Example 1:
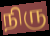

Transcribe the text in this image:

நிரு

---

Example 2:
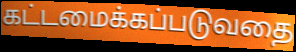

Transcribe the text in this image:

கட்டமைக்கப்படுவதை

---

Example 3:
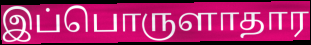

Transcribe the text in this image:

இப்பொருளாதார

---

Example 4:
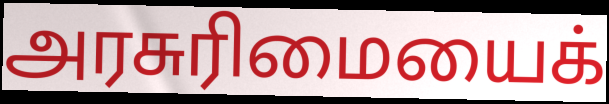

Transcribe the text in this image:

அரசுரிமையைக்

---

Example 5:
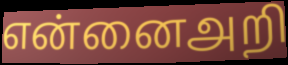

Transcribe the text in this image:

என்னைஅறி